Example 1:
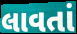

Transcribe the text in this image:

લાવતાં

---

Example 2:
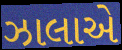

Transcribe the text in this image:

ઝાલાએ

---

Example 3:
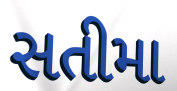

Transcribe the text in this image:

સતીમા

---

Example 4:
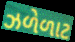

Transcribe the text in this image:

ઝળેળાટ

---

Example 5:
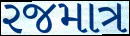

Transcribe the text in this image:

રજમાત્ર